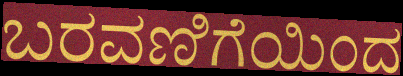
ಬರವಣಿಗೆಯಿಂದ